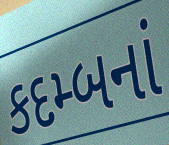
કદમ્બનાં